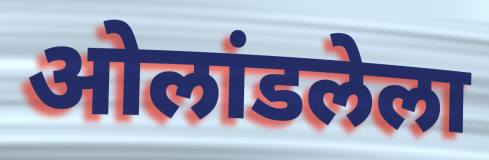
ओलांडलेला